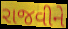
રાજવીને